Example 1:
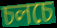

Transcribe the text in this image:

চলচে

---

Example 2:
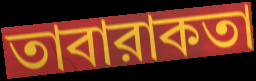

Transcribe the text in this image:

তাবারাকতা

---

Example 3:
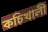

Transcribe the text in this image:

কচিখালী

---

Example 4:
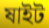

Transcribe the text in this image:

ষাইট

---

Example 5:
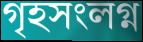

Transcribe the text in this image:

গৃহসংলগ্ন